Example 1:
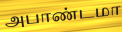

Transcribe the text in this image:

அபாண்டமா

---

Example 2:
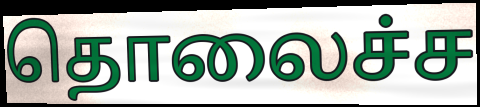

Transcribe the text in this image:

தொலைச்ச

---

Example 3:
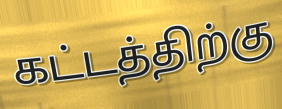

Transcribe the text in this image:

கட்டத்திற்கு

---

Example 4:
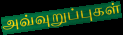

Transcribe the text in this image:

அவ்வுறுப்புகள்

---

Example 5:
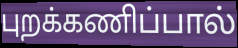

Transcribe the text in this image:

புறக்கணிப்பால்